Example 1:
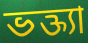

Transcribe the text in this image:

ভক্ত্যা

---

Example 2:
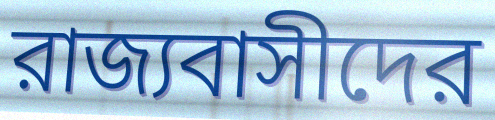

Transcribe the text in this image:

রাজ্যবাসীদের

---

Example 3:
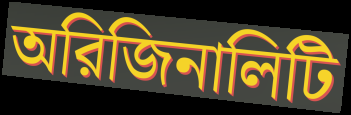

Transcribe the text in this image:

অরিজিনালিটি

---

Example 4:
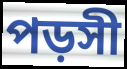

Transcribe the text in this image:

পড়সী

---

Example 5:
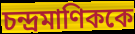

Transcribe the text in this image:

চন্দ্রমাণিককে